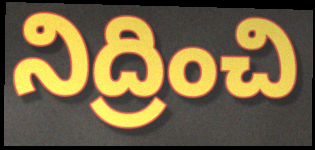
నిద్రించి